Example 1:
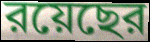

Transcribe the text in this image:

রয়েছের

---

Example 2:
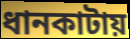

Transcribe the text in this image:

ধানকাটায়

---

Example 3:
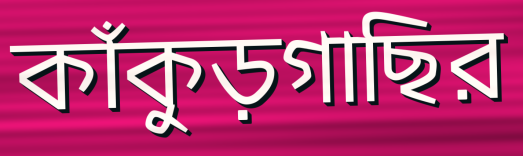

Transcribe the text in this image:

কাঁকুড়গাছির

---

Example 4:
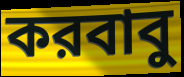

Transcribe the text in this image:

করবাবু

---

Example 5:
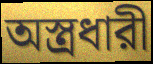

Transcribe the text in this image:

অস্ত্রধারী